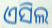
ଏସିଲ